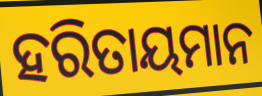
ହରିତାୟମାନ